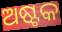
ଅଷ୍ଟକ